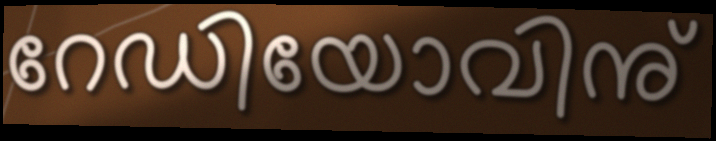
റേഡിയോവിനു്